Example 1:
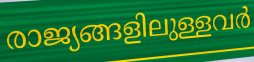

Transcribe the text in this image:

രാജ്യങ്ങളിലുള്ളവർ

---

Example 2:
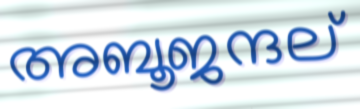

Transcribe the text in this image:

അബൂജന്ദല്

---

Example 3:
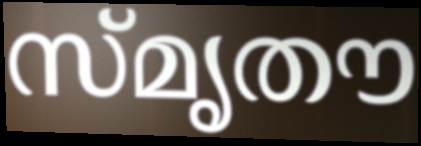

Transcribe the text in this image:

സ്മൃതൗ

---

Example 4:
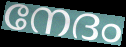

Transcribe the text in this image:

നേദം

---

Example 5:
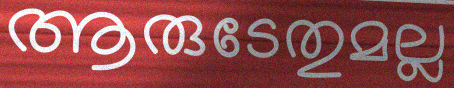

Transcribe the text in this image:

ആരുടേതുമല്ല